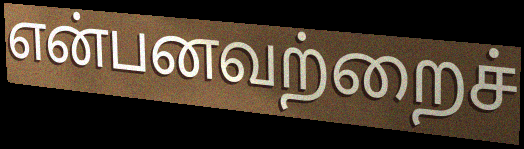
என்பனவற்றைச்